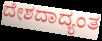
ದೇಶದಾದ್ಯಂತ